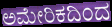
ಅಮೇರಿಕದಿಂದ